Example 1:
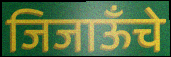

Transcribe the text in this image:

जिजाऊँचे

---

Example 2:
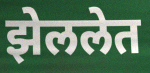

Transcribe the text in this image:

झेललेत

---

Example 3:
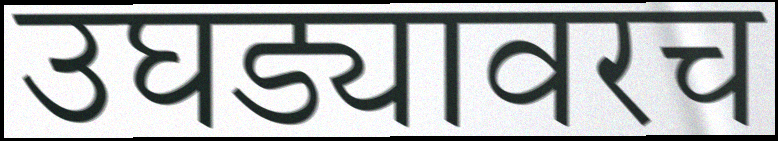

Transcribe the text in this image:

उघड्यावरच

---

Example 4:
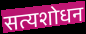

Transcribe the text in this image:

सत्यशोधन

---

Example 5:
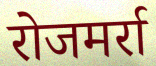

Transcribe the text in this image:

रोजमर्रा